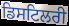
ਡਿਸਟਿਲਰੀ